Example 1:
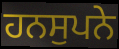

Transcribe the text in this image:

ਹਨਸੁਪਨੇ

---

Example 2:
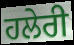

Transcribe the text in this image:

ਹਲੇਰੀ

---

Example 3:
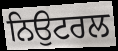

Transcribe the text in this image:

ਨਿਉਟਰਲ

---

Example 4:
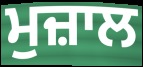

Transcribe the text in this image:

ਮੁਜ਼ਾਲ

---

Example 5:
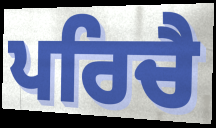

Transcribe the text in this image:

ਪਰਿਚੈ